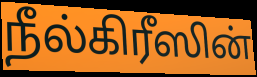
நீல்கிரீஸின்